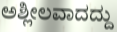
ಅಶ್ಲೀಲವಾದದ್ದು